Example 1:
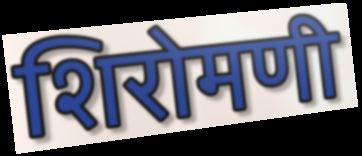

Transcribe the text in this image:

शिरोमणी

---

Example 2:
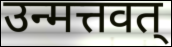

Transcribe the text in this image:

उन्मत्तवत्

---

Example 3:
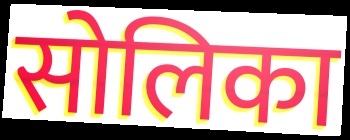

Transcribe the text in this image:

सोलिका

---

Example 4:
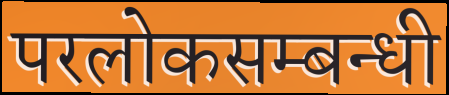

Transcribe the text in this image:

परलोकसम्बन्धी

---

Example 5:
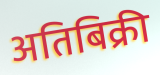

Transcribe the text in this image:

अतिबिक्री